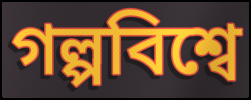
গল্পবিশ্বে